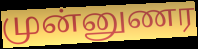
முன்னுணர